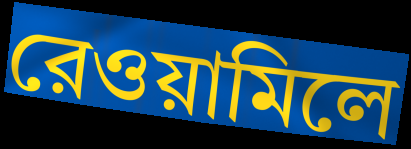
রেওয়ামিলে